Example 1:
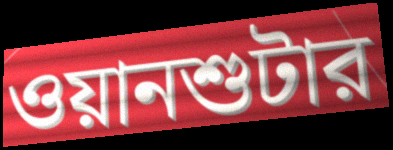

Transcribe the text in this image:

ওয়ানশুটার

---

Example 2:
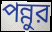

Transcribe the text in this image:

পন্নুর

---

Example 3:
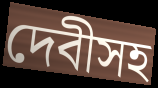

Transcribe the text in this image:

দেবীসহ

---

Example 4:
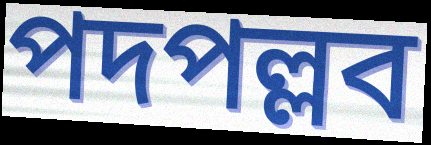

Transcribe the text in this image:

পদপল্লব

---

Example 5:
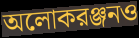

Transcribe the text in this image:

অলোকরঞ্জনও